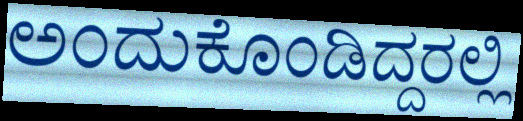
ಅಂದುಕೊಂಡಿದ್ದರಲ್ಲಿ